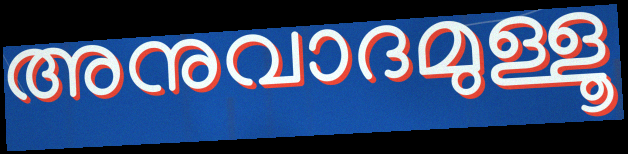
അനുവാദമുള്ളൂ